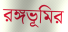
রঙ্গভূমির